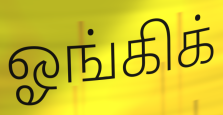
ஓங்கிக்